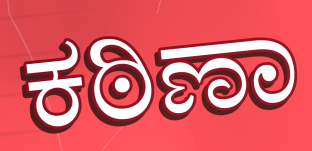
ಕಠಿಣಾ